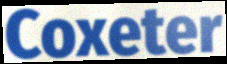
Coxeter